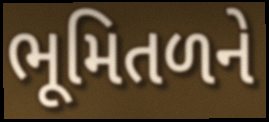
ભૂમિતળને